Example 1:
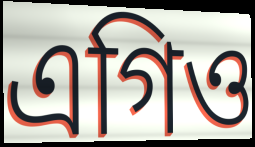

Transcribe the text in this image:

এগিও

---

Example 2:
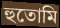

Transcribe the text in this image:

হুতোমি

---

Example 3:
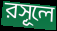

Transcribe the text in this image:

রসূলে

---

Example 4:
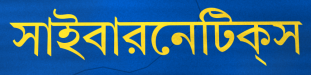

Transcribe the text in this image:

সাইবারনেটিক্‌স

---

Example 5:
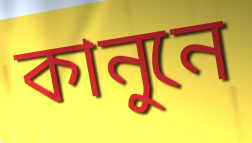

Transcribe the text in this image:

কানুনে